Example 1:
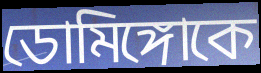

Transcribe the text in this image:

ডোমিঙ্গোকে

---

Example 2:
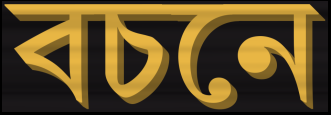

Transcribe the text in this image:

বচনে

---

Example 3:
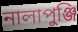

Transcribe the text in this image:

নালাপুঞ্জি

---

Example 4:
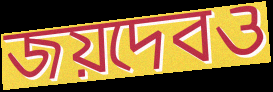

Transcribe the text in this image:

জয়দেবও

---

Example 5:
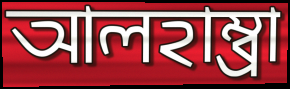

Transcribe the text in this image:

আলহাম্ব্রা